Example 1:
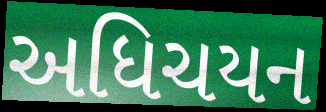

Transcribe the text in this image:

અધિચયન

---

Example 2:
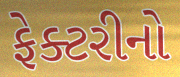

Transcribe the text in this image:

ફેક્ટરીનો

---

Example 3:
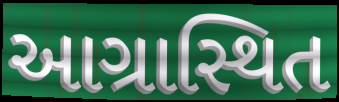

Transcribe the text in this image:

આગ્રાસ્થિત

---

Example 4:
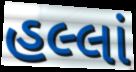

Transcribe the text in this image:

હલ્લાં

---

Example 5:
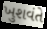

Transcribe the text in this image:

ખુશવંતે